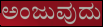
ಅಂಜುವುದು